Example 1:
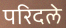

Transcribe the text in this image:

परिदले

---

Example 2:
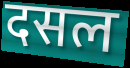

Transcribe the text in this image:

दसल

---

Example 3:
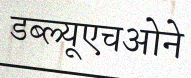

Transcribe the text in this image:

डब्ल्यूएचओने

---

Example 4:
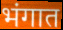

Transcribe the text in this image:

भंगात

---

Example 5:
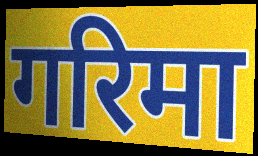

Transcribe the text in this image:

गरिमा